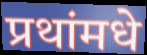
प्रथांमधे